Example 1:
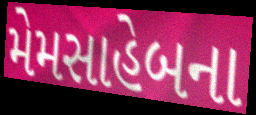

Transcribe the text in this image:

મેમસાહેબના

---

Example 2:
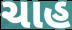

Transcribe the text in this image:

ચાહ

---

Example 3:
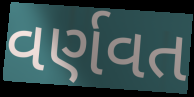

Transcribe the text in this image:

વર્ણવત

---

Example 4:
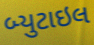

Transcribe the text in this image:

બ્યુટાઇલ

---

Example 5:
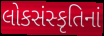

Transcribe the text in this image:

લોકસંસ્કૃતિનાં